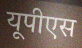
यूपीएस